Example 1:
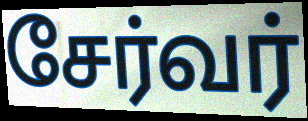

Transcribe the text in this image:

சேர்வர்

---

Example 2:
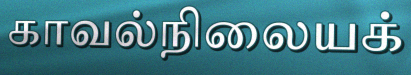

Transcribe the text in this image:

காவல்நிலையக்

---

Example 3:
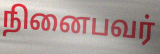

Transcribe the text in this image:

நினைபவர்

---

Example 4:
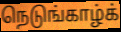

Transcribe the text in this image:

நெடுங்காழ்க்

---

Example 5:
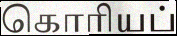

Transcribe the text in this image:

கொரியப்